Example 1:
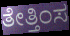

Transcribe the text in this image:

ತೇತ್ತಿಂಸ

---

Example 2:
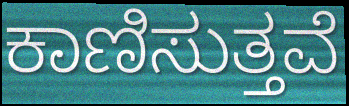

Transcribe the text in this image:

ಕಾಣಿಸುತ್ತವೆ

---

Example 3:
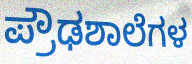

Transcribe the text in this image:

ಪ್ರೌಢಶಾಲೆಗಳ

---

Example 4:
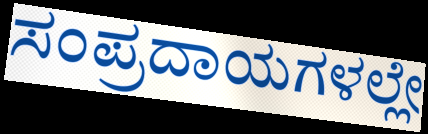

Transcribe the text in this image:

ಸಂಪ್ರದಾಯಗಳಲ್ಲೇ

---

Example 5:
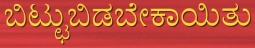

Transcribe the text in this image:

ಬಿಟ್ಟುಬಿಡಬೇಕಾಯಿತು